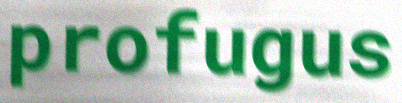
profugus